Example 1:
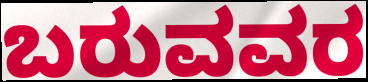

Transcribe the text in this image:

ಬರುವವರ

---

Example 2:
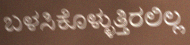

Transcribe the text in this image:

ಬಳಸಿಕೊಳ್ಳುತ್ತಿರಲಿಲ್ಲ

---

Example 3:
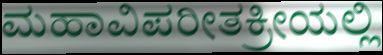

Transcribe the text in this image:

ಮಹಾವಿಪರೀತಕ್ರೀಯಲ್ಲಿ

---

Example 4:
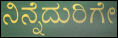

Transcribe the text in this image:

ನಿನ್ನೆದುರಿಗೇ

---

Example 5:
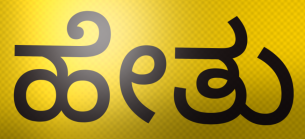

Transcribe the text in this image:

ಹೇತು